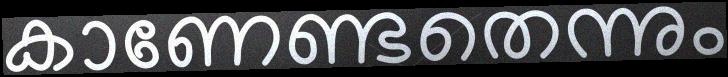
കാണേണ്ടതെന്നും